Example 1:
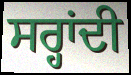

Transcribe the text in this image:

ਸਰ੍ਹਾਂਦੀ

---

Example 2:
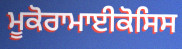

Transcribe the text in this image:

ਮੂਕੋਰਾਮਾਈਕੋਸਿਸ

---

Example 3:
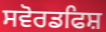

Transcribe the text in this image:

ਸਵੋਰਡਫਿਸ਼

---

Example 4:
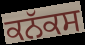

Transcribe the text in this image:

ਕਨੱਕਸ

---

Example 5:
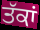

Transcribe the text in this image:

ਤੱਕਾਂ